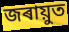
জৰায়ুত